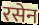
रसेन